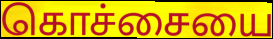
கொச்சையை